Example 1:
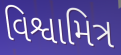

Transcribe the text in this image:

વિશ્વામિત્ર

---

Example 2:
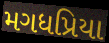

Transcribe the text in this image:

મગધપ્રિયા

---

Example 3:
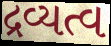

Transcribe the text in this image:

દ્રવ્યત્વ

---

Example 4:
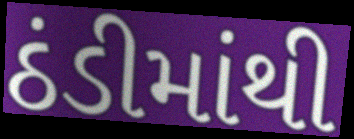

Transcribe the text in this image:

ઠંડીમાંથી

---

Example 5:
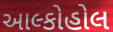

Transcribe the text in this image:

આલ્કોહોલ